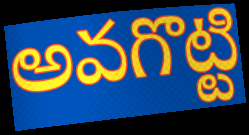
అవగొట్టి